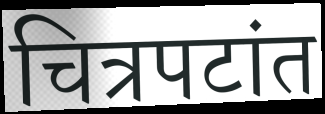
चित्रपटांत